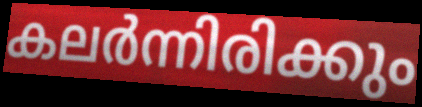
കലർന്നിരിക്കും